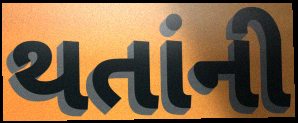
થતાંની